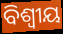
ବିଶ୍ଵୀୟ